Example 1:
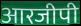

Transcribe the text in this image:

आरजीपी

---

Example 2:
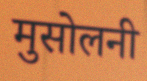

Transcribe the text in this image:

मुसोलनी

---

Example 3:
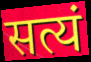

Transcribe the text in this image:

सत्यं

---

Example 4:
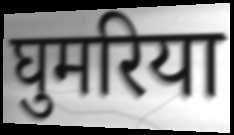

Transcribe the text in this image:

घुमरिया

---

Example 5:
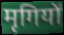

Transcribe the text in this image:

मृगियों